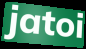
jatoi